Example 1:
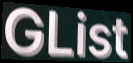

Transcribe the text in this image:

GList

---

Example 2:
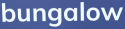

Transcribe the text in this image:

bungalow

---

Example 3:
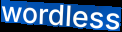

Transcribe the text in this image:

wordless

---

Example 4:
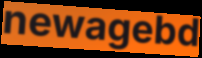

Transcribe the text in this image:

newagebd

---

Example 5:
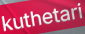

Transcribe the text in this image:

kuthetari